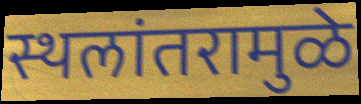
स्थलांतरामुळे